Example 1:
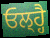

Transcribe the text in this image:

ਓਲ੍ਹ੍ਹੈ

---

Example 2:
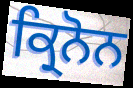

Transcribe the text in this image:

ਕ੍ਰਿਨੋਨ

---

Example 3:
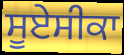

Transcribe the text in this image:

ਸੂਏਸੀਕਾ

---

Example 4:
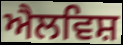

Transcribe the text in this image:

ਐਲਵਿਸ਼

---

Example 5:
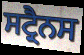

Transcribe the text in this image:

ਸਟ੍ਰੈਨਸ